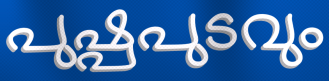
പുഷ്പപുടവും